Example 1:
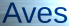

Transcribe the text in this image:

Aves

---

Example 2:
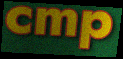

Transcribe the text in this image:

cmp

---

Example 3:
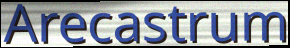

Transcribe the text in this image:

Arecastrum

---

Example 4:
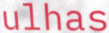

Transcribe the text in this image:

ulhas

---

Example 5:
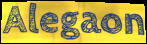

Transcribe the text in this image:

Alegaon